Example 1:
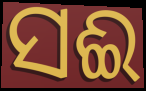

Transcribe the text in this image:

ସଈ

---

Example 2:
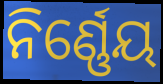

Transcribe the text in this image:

ନିର୍ଣ୍ଣେୟ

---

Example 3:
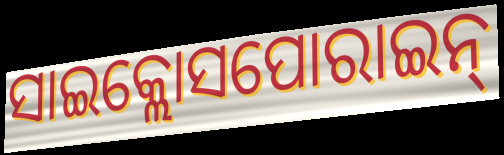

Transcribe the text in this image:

ସାଇକ୍ଲୋସପୋରାଇନ୍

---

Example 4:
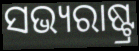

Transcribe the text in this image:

ସଭ୍ୟରାଷ୍ଟ୍ର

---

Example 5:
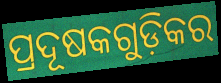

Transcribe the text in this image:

ପ୍ରଦୂଷକଗୁଡ଼ିକର